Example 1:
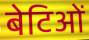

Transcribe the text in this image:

बेटिओं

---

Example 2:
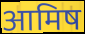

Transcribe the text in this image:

आमिष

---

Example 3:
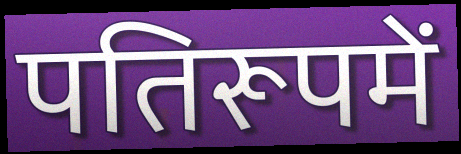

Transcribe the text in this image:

पतिरूपमें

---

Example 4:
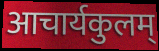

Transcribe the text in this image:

आचार्यकुलम्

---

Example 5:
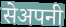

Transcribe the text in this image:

सेअपनी